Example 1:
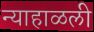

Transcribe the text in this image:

न्याहाळली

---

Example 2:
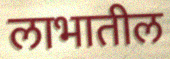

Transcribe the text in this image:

लाभातील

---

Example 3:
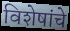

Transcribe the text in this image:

विशेषांचे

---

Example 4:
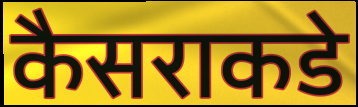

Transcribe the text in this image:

कैसराकडे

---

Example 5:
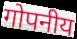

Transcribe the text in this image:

गोपनीय